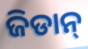
ଜିଡାନ୍